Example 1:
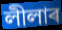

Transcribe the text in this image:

লীলাৰ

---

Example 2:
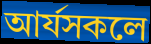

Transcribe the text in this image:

আৰ্যসকলে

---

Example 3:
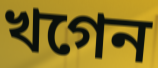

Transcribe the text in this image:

খগেন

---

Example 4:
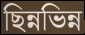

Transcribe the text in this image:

ছিন্নভিন্ন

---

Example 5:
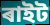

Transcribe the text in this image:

ৰাইট